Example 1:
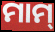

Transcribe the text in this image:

ମାମ୍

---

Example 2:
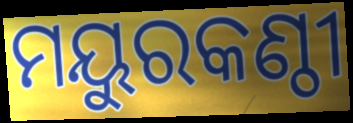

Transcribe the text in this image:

ମୟୁରକଣ୍ଠୀ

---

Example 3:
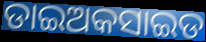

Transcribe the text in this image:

ଡାଇଅକସାଇଡ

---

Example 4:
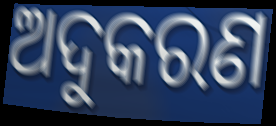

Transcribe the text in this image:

ଅଦୁକରଣ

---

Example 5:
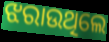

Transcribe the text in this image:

ଝରାଉଥିଲେ